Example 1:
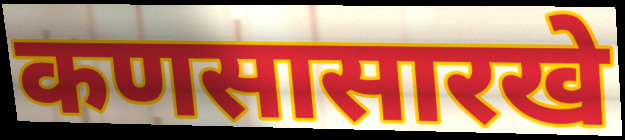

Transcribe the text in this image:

कणसासारखे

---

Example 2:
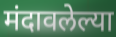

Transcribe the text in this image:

मंदावलेल्या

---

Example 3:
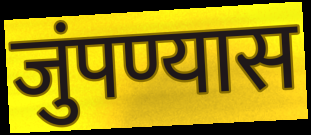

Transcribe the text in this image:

जुंपण्यास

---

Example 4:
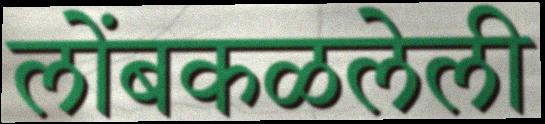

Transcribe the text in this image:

लोंबकळलेली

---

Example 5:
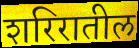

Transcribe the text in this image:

शरिरातील